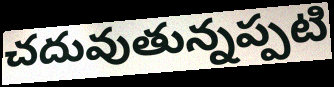
చదువుతున్నప్పటి